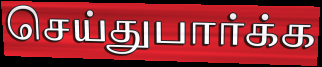
செய்துபார்க்க